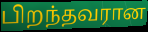
பிறந்தவரான